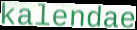
kalendae